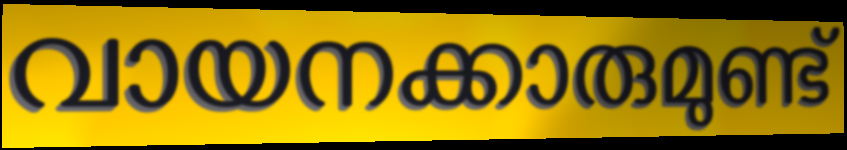
വായനക്കാരുമുണ്ട്